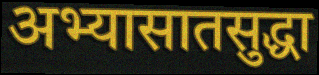
अभ्यासातसुद्धा